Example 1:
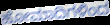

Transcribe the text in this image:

ಹೋಮಾದಿಗಳಿಂದ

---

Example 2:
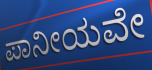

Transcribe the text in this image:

ಪಾನೀಯವೇ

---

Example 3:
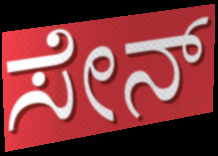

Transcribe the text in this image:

ಸೇನ್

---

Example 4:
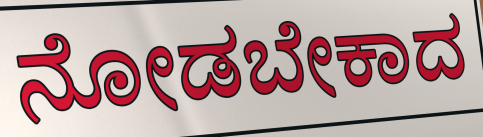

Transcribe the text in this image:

ನೋಡಬೇಕಾದ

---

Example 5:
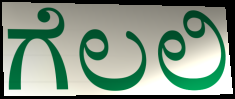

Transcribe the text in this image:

ಗೆಲಲಿ